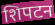
शिपटन